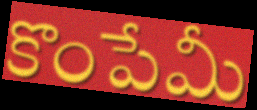
కొంపేమీ